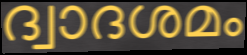
ദ്വാദശമം